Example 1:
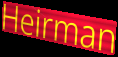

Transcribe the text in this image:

Heirman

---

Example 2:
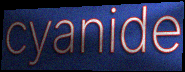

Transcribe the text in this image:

cyanide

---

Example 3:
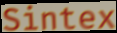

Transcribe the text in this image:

Sintex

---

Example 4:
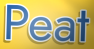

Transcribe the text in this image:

Peat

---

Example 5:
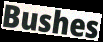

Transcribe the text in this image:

Bushes